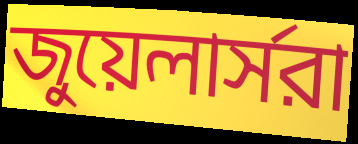
জুয়েলার্সরা